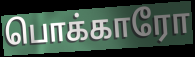
பொக்காரோ